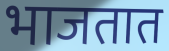
भाजतात